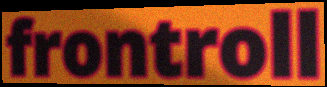
frontroll